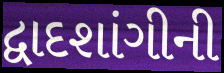
દ્વાદશાંગીની